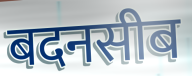
बदनसीब